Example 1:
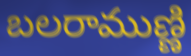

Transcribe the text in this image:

బలరాముణ్ణి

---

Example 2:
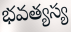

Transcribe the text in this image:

భవత్యస్య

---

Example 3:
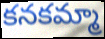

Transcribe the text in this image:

కనకమ్మా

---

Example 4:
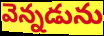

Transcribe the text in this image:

వెన్నడును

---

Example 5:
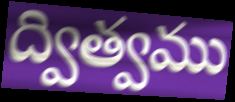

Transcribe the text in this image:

ద్విత్వము